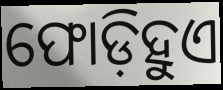
ଫୋଡ଼ିହୁଏ